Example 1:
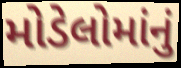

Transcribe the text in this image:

મોડેલોમાંનું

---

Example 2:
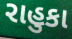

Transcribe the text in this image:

રાહુકા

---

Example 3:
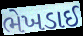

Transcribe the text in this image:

ભેખડાઈ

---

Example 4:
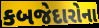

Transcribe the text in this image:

કબજેદારોના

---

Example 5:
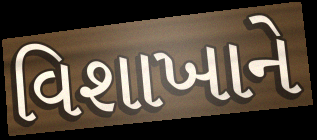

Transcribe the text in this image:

વિશાખાને